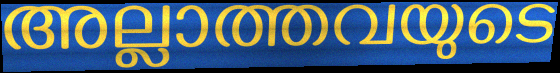
അല്ലാത്തവയുടെ